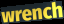
wrench